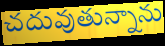
చదువుతున్నాను